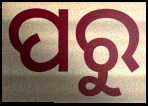
ପରୁ